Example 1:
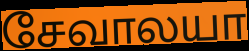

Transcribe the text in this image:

சேவாலயா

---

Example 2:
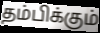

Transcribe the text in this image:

தம்பிக்கும்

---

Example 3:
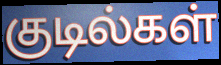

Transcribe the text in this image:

குடில்கள்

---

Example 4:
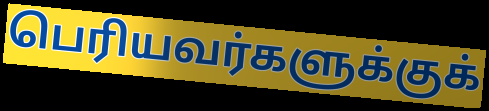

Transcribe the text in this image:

பெரியவர்களுக்குக்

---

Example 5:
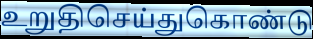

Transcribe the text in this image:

உறுதிசெய்துகொண்டு